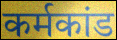
कर्मकांड